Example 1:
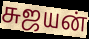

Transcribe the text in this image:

சுஜயன்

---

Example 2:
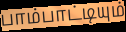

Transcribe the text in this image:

பாம்பாட்டியும்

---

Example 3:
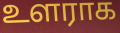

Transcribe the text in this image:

உளராக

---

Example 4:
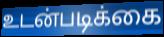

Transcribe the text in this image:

உடன்படிக்கை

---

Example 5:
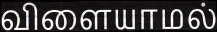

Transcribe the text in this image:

விளையாமல்